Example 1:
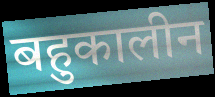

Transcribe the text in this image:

बहुकालीन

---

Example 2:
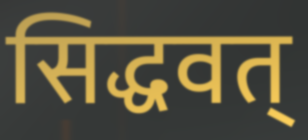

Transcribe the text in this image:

सिद्धवत्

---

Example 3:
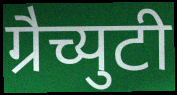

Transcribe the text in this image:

ग्रैच्युटी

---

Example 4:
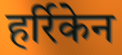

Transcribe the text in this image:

हर्रिकेन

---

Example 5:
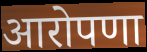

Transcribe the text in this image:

आरोपणा